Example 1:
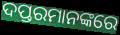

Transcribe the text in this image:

ଦପ୍ତରମାନଙ୍କରେ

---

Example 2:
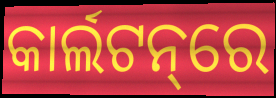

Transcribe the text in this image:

କାର୍ଲଟନ୍‌ରେ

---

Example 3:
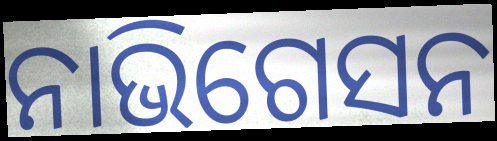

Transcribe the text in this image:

ନାଭିଗେସନ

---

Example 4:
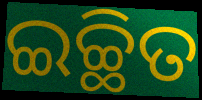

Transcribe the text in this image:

ଇଚ୍ଛିତ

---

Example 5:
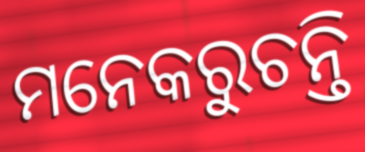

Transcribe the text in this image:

ମନେକରୁଚନ୍ତି